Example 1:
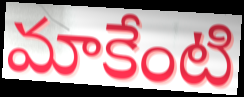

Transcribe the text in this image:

మాకేంటి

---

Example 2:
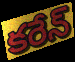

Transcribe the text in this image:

కరేన్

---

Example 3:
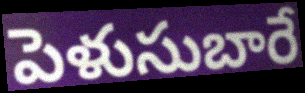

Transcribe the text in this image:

పెళుసుబారే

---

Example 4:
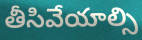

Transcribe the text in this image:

తీసివేయాల్సి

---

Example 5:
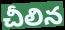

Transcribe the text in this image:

చీలిన